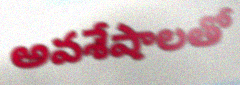
అవశేషాలతో